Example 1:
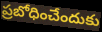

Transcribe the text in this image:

ప్రబోధించేందుకు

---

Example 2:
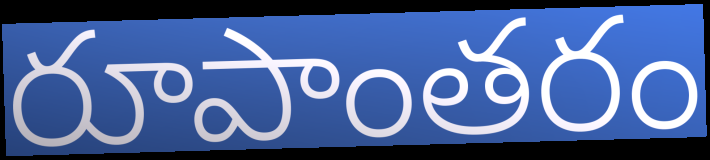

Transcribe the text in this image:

రూపాంతరం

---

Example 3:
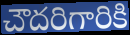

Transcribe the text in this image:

చౌదరిగారికి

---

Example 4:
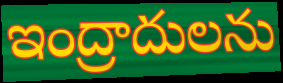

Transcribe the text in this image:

ఇంద్రాదులను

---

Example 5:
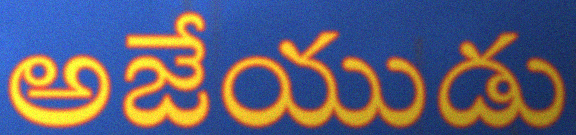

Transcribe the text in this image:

అజేయుడు